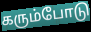
கரும்போடு